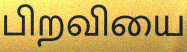
பிறவியை